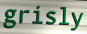
grisly